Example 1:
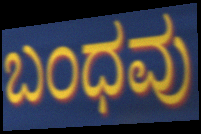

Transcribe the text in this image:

ಬಂಧವು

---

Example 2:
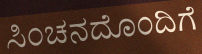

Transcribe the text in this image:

ಸಿಂಚನದೊಂದಿಗೆ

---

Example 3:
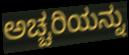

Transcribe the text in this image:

ಅಚ್ಚರಿಯನ್ನು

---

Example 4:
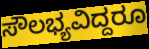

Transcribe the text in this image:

ಸೌಲಭ್ಯವಿದ್ದರೂ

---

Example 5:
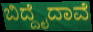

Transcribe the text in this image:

ಬಿದ್ದೈದಾವೆ